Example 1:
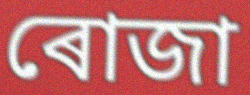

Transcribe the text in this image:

ৰোজা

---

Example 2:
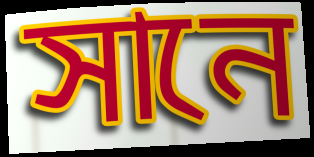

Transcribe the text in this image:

সানে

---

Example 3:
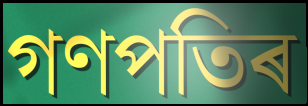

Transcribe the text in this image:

গণপতিৰ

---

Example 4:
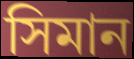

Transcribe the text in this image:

সিমান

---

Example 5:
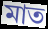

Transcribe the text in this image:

মাত